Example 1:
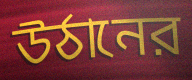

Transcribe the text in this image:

উঠানের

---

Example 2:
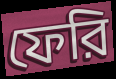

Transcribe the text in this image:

ফেরি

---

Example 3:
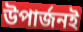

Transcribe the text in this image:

উপার্জনই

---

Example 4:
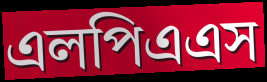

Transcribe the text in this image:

এলপিএএস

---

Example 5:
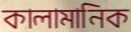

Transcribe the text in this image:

কালামানিক